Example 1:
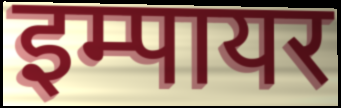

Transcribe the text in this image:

इम्पायर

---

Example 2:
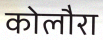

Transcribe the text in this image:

कोलौरा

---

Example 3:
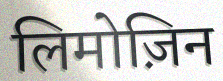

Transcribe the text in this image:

लिमोज़िन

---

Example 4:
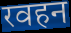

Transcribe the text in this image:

रवहन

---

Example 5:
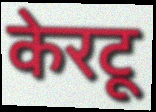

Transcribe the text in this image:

केरटू